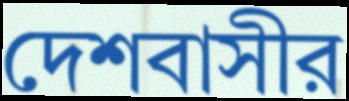
দেশবাসীর